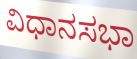
ವಿಧಾನಸಭಾ